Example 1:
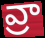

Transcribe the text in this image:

వ్రా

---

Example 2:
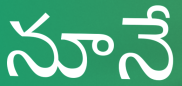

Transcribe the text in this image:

నూనే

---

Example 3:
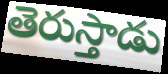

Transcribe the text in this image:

తెరుస్తాడు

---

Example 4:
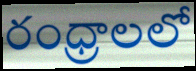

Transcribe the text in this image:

రంధ్రాలలో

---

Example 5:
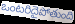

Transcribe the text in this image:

ఒంటరిదైపోతుంది